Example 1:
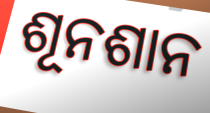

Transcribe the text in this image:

ଶୂନଶାନ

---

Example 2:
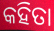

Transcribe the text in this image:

କହିତା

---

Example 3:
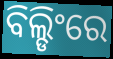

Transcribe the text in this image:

ବିଲ୍ଡିଂରେ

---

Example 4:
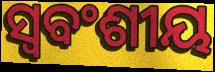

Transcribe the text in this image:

ସ୍ଵବଂଶୀୟ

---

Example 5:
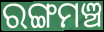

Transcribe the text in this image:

ରଙ୍ଗମଞ୍ଚ